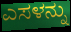
ಎಸಳನ್ನು